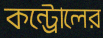
কন্ট্রোলের